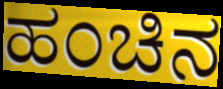
ಹಂಚಿನ